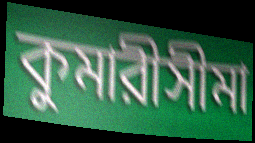
কুমারীসীমা